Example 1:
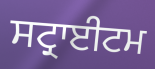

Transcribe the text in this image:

ਸਟ੍ਰਾਈਟਮ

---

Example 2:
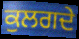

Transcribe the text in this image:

ਕੁਲਗਦੇ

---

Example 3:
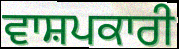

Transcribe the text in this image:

ਵਾਸ਼ਪਕਾਰੀ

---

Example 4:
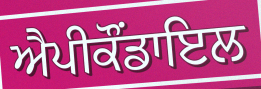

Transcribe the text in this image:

ਐਪੀਕੌਂਡਾਇਲ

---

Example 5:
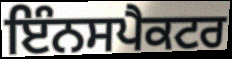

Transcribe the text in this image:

ਇੰਨਸਪੈਕਟਰ